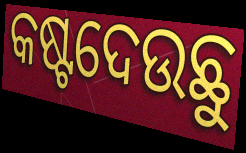
କଷ୍ଟଦେଉଛୁ